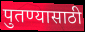
पुतण्यासाठी